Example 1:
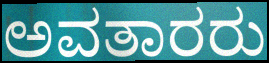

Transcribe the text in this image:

ಅವತಾರರು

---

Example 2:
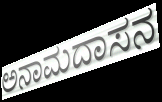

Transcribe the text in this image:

ಅನಾಮದಾಸನ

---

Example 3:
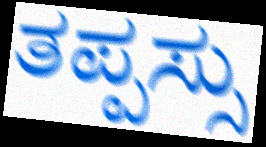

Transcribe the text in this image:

ತಪ್ಪಸ್ಸು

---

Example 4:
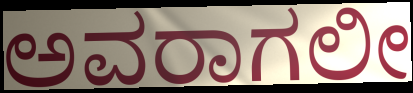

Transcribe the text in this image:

ಅವರಾಗಲೀ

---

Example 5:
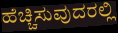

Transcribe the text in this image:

ಹೆಚ್ಚಿಸುವುದರಲ್ಲಿ